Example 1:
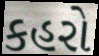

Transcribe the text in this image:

કહરો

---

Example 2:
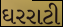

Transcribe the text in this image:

ઘરરાટી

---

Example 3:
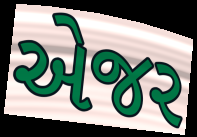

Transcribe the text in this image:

એજર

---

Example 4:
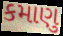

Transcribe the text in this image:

કમાણુ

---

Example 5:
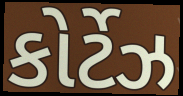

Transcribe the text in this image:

કોર્ટેઝ